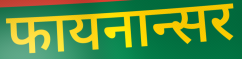
फायनान्सर